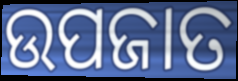
ଉପଜାତ